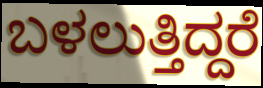
ಬಳಲುತ್ತಿದ್ದರೆ